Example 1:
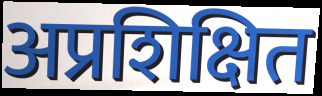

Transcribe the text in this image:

अप्रशिक्षित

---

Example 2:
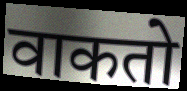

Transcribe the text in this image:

वाकतो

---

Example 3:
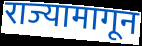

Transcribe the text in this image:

राज्यामागून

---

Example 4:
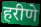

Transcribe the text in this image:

हरीणे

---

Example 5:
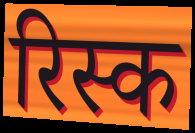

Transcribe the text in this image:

रिस्क